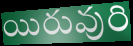
యిరువురి